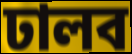
ঢালব